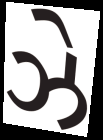
ઝે